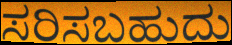
ಸರಿಸಬಹುದು